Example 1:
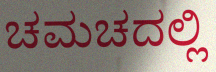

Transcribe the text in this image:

ಚಮಚದಲ್ಲಿ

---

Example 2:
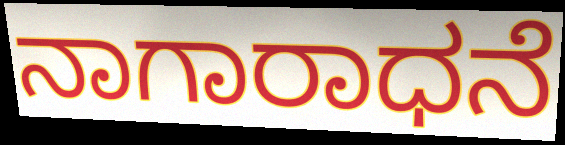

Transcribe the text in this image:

ನಾಗಾರಾಧನೆ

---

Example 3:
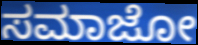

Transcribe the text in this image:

ಸಮಾಜೋ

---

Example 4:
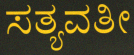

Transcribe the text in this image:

ಸತ್ಯವತೀ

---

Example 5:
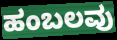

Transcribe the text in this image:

ಹಂಬಲವು